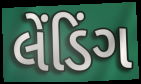
લેંડિંગ